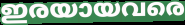
ഇരയായവരെ